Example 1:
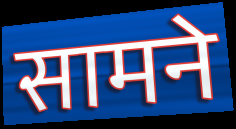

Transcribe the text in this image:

सामने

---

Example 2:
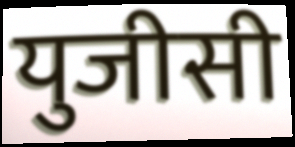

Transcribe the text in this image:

युजीसी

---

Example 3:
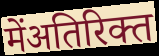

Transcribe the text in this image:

मेंअतिरिक्त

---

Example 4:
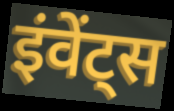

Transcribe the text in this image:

इंवेंट्स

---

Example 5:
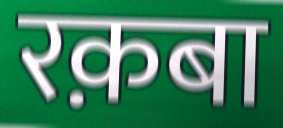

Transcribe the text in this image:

रक़बा